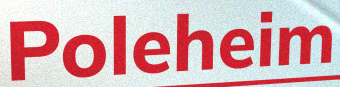
Poleheim